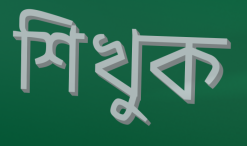
শিখুক